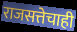
राजसत्तेचाही